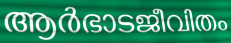
ആർഭാടജീവിതം